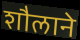
शौलाने